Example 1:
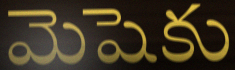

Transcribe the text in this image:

మెషెకు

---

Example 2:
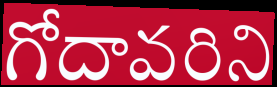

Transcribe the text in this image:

గోదావరిని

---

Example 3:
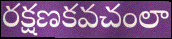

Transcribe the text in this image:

రక్షణకవచంలా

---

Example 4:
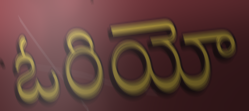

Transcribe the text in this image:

ఓరియో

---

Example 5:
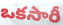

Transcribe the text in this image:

ఒకసారీ